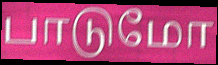
பாடுமோ